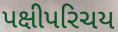
પક્ષીપરિચય